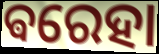
ଵରେହା